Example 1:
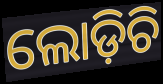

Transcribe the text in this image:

ଲୋଡ଼ିଚି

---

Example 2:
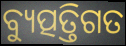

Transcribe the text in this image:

ବ୍ୟୁତ୍ପତ୍ତିଗତ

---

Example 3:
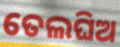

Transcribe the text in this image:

ତେଲଘିଅ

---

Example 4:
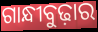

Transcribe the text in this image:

ଗାନ୍ଧୀବୁଢ଼ାର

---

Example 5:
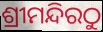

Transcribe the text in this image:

ଶ୍ରୀମନ୍ଦିରଠୁ